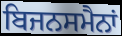
ਬਿਜਨਸਮੈਨਾਂ